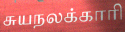
சுயநலக்காரி